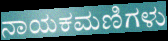
ನಾಯಕಮಣಿಗಳು